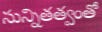
సున్నితత్వంతో